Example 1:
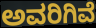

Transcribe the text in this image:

ಅವರಿಗಿವೆ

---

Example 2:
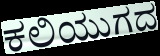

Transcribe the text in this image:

ಕಲಿಯುಗದ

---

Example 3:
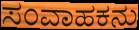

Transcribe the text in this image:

ಸಂವಾಹಕನು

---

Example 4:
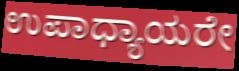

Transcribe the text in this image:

ಉಪಾಧ್ಯಾಯರೇ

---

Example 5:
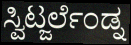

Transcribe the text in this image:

ಸ್ವಿಟ್ಜರ್ಲೆಂಡ್ನ